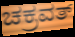
ಚಕ್ರವತ್